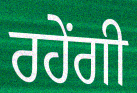
ਰਹੇਂਗੀ